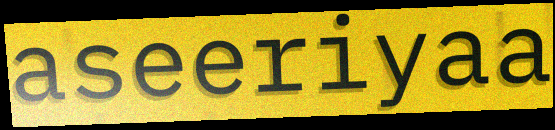
aseeriyaa